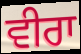
ਵੀਰਾ